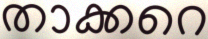
താക്കറെ